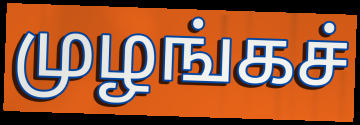
முழங்கச்